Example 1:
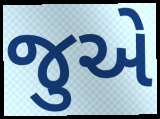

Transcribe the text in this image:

જુએ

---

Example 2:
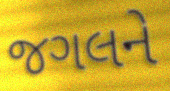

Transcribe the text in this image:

જગલને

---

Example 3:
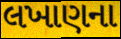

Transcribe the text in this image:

લખાણના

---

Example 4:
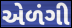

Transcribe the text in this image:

એળંગી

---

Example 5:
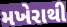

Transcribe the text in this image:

મખેરાથી